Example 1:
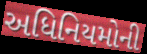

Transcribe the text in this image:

અધિનિયમોની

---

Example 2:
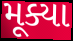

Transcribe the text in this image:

મૂક્યા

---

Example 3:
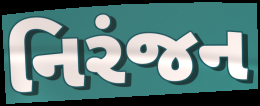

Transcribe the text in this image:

નિરંજન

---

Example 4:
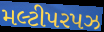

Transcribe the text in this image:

મલ્ટીપરપઝ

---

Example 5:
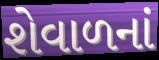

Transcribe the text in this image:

શેવાળનાં